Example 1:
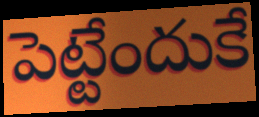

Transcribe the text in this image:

పెట్టేందుకే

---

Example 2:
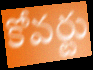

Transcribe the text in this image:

కోవర్టు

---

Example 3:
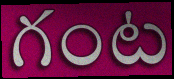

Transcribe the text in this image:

గంట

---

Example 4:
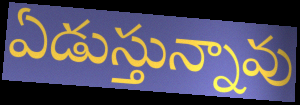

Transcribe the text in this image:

ఏడుస్తున్నావు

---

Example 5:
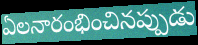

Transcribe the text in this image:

ఏలనారంభించినప్పుడు